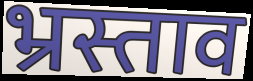
भ्रस्ताव